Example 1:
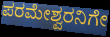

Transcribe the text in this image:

ಪರಮೇಶ್ವರನಿಗೇ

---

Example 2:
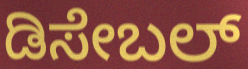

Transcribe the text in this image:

ಡಿಸೇಬಲ್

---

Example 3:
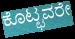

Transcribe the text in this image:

ಕೊಟ್ಟವರೇ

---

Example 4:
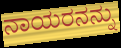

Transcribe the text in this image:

ನಾಯರನನ್ನು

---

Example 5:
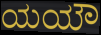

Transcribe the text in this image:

ಯಯೌ